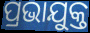
ପ୍ରଭାଯୁକ୍ତ